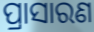
ପ୍ରାସାରଣ